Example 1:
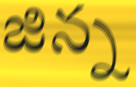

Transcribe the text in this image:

జిన్న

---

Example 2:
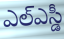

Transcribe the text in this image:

ఎల్ఎస్డీ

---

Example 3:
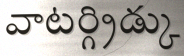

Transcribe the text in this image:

వాటర్గ్రిడ్కు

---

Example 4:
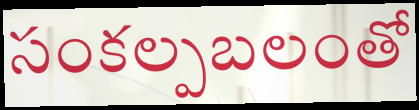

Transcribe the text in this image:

సంకల్పబలంతో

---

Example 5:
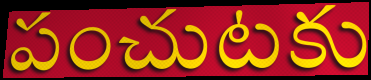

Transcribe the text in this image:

పంచుటకు